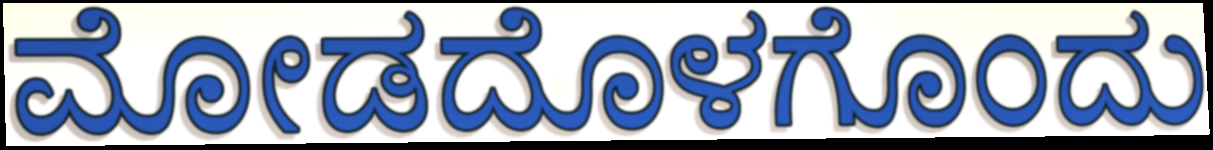
ಮೋಡದೊಳಗೊಂದು